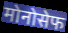
मोनोसेफ